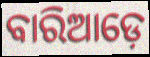
ବାରିଆଡ଼େ